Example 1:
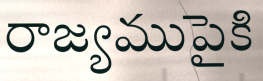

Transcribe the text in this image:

రాజ్యముపైకి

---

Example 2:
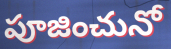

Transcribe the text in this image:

పూజించునో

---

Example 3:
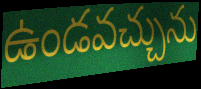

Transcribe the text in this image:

ఉండవచ్చును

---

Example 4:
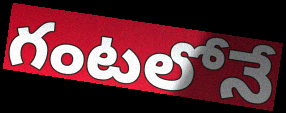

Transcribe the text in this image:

గంటలోనే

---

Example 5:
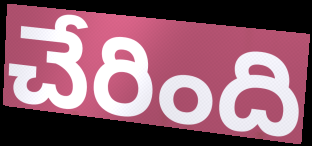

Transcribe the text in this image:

చేరింది